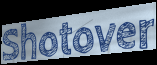
Shotover